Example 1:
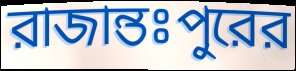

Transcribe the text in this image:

রাজান্তঃপুরের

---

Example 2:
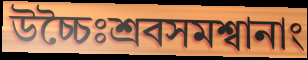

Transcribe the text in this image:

উচ্চৈঃশ্রবসমশ্বানাং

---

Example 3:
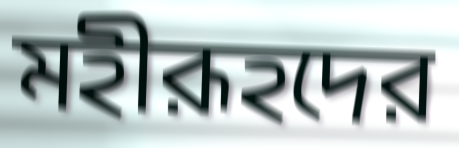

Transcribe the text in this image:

মহীরূহদের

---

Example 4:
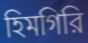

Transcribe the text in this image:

হিমগিরি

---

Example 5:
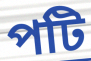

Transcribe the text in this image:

পটি